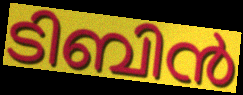
ടിബിൻ